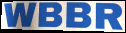
WBBR